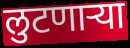
लुटणाऱ्या